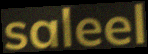
saleel